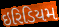
ઇરિડિયમ